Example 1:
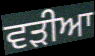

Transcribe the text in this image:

ਵੜੀਆ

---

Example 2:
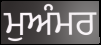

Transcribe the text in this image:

ਮੁਅੰਮਰ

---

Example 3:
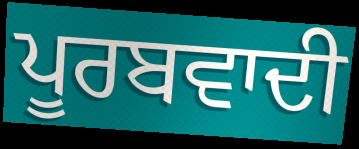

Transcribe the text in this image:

ਪੂਰਬਵਾਦੀ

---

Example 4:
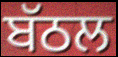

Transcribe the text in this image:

ਬੱਠਲ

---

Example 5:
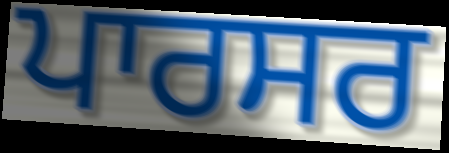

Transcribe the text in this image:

ਪਾਰਸਰ